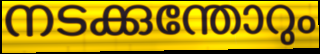
നടക്കുന്തോറും